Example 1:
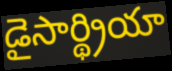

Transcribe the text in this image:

డైసార్థ్రియా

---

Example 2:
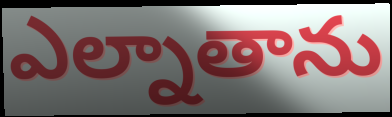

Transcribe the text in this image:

ఎల్నాతాను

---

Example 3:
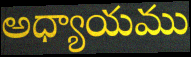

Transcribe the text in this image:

అధ్యాయము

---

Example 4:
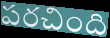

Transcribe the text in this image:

పరచింది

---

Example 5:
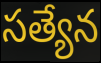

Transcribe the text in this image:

సత్యేన